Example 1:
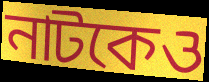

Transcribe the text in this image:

নাটকেও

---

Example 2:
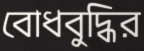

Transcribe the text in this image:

বোধবুদ্ধির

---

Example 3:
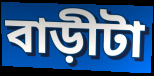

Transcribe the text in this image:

বাড়ীটা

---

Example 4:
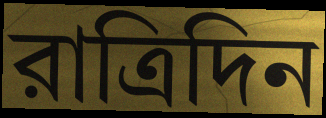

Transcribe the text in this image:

রাত্রিদিন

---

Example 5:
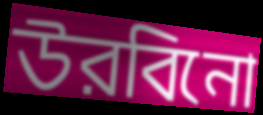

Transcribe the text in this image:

উরবিনো